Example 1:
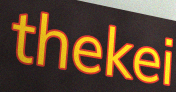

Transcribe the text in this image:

thekei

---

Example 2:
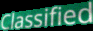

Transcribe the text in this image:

Classified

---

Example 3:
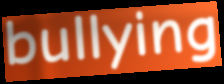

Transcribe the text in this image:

bullying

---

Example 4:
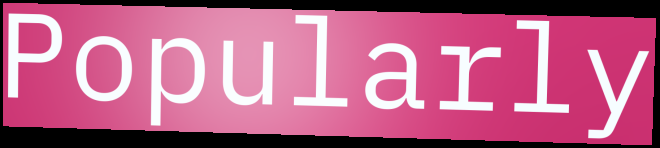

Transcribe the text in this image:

Popularly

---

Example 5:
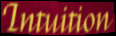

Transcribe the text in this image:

Intuition